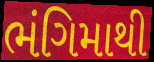
ભંગિમાથી